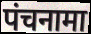
पंचनामा